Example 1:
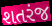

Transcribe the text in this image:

શતરંજ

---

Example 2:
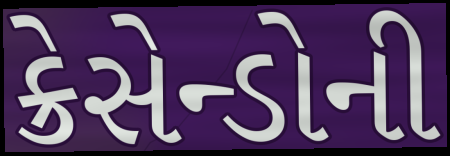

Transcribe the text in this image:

ક્રેસેન્ડોની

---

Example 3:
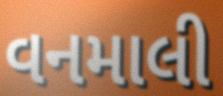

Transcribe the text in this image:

વનમાલી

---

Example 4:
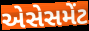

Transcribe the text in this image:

એસેસમેંટ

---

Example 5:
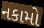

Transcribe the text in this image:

નકામો